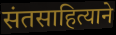
संतसाहित्याने